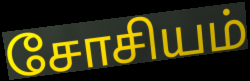
சோசியம்